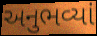
અનુભવ્યાં